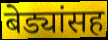
बेड्यांसह